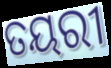
ତୟରୀ